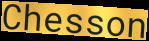
Chesson